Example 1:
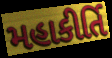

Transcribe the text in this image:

મહાકીર્તિ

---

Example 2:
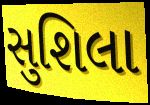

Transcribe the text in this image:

સુશિલા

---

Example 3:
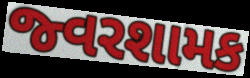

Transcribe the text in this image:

જ્વરશામક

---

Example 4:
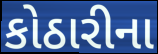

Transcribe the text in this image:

કોઠારીના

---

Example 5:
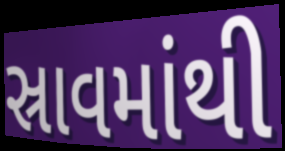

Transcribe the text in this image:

સ્રાવમાંથી